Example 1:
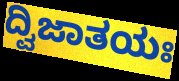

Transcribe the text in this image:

ದ್ವಿಜಾತಯಃ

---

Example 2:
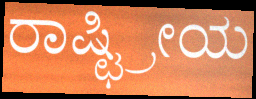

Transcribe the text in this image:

ರಾಷ್ಟ್ರೀಯ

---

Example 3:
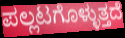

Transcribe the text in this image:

ಪಲ್ಲಟಗೊಳ್ಳುತ್ತದೆ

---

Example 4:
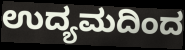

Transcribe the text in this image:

ಉದ್ಯಮದಿಂದ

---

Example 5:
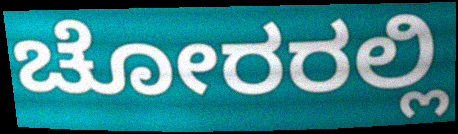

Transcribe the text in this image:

ಚೋರರಲ್ಲಿ